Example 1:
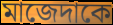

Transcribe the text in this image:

মাজেদাকে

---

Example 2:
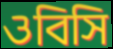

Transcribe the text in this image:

ওবিসি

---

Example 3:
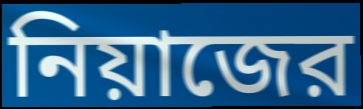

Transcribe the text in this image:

নিয়াজের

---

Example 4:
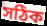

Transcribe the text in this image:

সঠিক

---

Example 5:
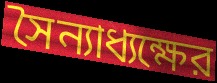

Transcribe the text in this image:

সৈন্যাধ্যক্ষের